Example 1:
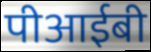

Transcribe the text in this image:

पीआईबी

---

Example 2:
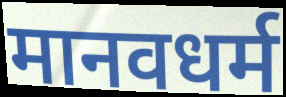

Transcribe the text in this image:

मानवधर्म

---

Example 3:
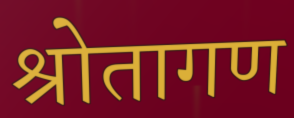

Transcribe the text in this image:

श्रोतागण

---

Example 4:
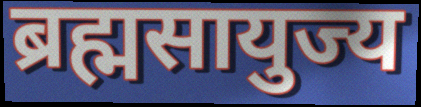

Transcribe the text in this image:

ब्रह्मसायुज्य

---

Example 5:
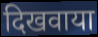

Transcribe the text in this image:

दिखवाया